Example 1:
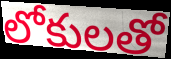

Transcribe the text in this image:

లోకులతో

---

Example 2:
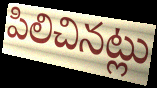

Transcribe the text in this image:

పిలిచినట్లు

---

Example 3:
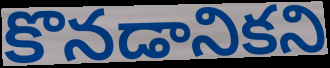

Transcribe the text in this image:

కొనడానికని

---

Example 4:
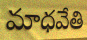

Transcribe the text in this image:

మాధవేతి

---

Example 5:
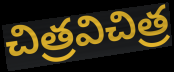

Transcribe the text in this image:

చిత్రవిచిత్ర